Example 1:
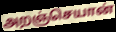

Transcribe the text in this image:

அறஞ்செயான்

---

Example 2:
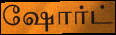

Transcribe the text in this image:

ஷோர்ட்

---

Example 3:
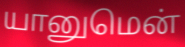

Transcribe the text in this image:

யானுமென்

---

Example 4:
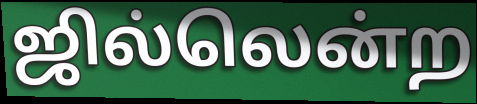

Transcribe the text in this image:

ஜில்லென்ற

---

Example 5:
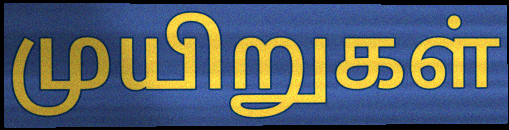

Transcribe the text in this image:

முயிறுகள்